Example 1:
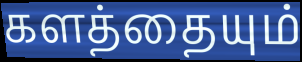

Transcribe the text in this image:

களத்தையும்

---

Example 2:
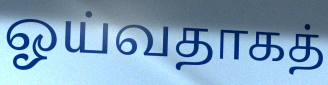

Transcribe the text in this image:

ஓய்வதாகத்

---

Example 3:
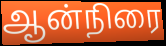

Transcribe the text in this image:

ஆன்நிரை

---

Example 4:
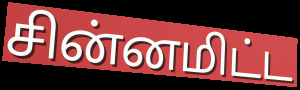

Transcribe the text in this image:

சின்னமிட்ட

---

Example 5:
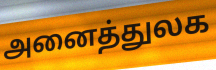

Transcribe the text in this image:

அனைத்துலக